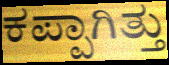
ಕಪ್ಪಾಗಿತ್ತು